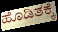
ಹೊಡಿತಕ್ಕೆ